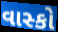
વાસ્કો